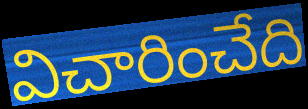
విచారించేది